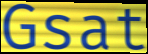
Gsat